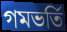
গমভর্তি